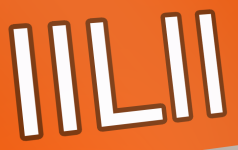
IILII